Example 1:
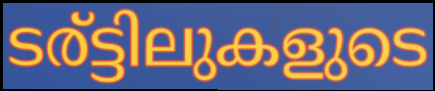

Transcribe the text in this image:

ടര്ട്ടിലുകളുടെ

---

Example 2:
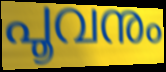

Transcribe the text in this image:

പൂവനും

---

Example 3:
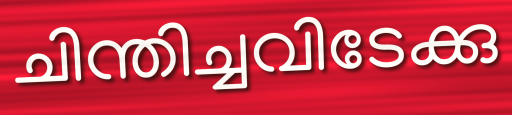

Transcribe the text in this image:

ചിന്തിച്ചവിടേക്കു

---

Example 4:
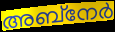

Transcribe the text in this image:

അബ്നേർ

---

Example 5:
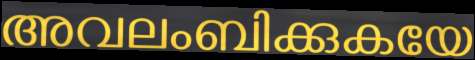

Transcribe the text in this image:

അവലംബിക്കുകയേ